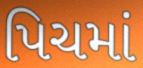
પિચમાં